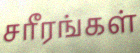
சரீரங்கள்